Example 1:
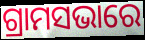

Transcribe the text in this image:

ଗ୍ରାମସଭାରେ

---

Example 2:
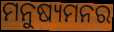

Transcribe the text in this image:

ମନୁଷ୍ୟମନର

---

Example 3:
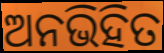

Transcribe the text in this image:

ଅନଭିହିତ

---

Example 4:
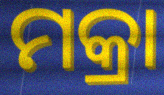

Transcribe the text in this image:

ମକ୍ରା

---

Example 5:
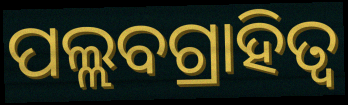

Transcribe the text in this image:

ପଲ୍ଲବଗ୍ରାହିତ୍ୱ